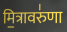
मि॒त्रावरु॑णा